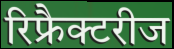
रिफ्रैक्टरीज